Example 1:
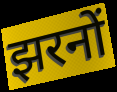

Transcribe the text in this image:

झरनों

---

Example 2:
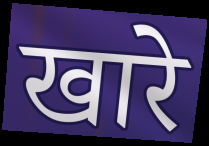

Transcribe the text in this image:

खारे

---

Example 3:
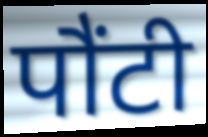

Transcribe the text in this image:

पौंटी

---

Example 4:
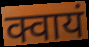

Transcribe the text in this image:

क्वायं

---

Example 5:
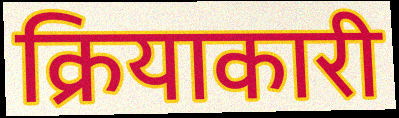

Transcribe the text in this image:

क्रियाकारी